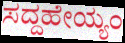
ಸದ್ದಹೇಯ್ಯಂ